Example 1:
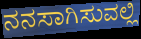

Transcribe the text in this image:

ನನಸಾಗಿಸುವಲ್ಲಿ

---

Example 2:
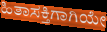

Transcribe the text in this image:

ಹಿತಾಸಕ್ತಿಗಾಗಿಯೇ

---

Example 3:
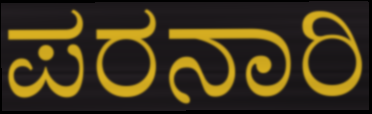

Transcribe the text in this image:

ಪರನಾರಿ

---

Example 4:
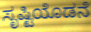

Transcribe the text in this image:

ಸೃಷ್ಟಿಯೊಡನೆ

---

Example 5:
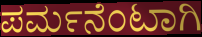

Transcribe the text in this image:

ಪರ್ಮನೆಂಟಾಗಿ